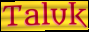
Taluk